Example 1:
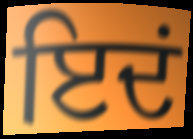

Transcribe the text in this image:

ਇਦਂ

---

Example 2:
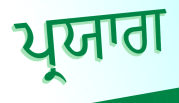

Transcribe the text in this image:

ਪ੍ਰਯਾਗ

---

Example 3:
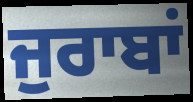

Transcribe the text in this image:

ਜੁਰਾਬਾਂ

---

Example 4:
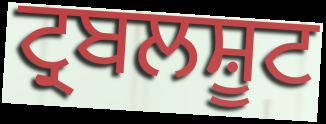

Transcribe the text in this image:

ਟ੍ਰਬਲਸ਼ੂਟ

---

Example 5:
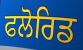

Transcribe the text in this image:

ਫਲੋਰਿਡ